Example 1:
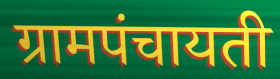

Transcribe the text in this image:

ग्रामपंचायती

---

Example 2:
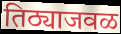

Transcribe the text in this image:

तिठ्याजवळ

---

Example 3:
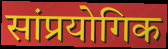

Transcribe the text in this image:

सांप्रयोगिक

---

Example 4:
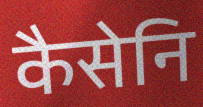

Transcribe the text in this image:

कैसेनि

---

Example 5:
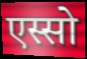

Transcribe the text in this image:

एस्सो